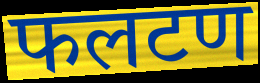
फलटण